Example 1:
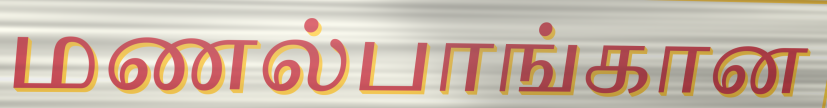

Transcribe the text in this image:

மணல்பாங்கான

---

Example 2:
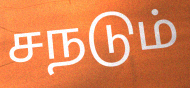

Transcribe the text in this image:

சநடும்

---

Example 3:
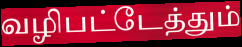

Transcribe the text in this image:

வழிபட்டேத்தும்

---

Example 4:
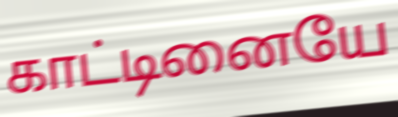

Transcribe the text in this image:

காட்டினையே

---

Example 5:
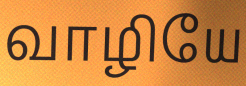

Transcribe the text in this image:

வாழியே